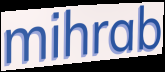
mihrab